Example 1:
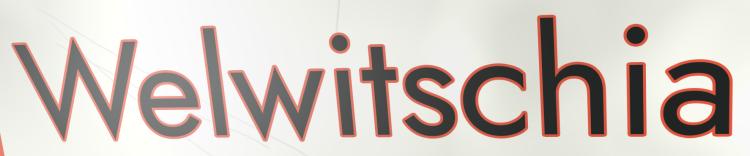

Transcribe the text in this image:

Welwitschia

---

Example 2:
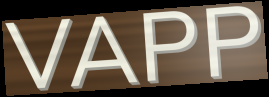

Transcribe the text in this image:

VAPP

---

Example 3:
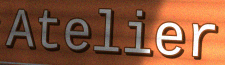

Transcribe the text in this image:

Atelier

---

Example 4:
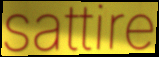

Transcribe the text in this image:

sattire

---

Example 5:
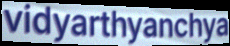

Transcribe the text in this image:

vidyarthyanchya